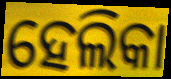
ହେଲିକା